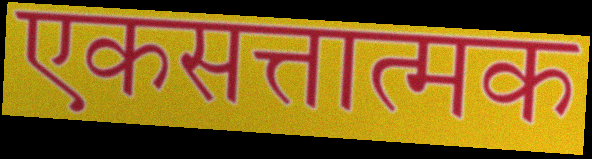
एकसत्तात्मक